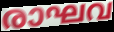
രാഘവ